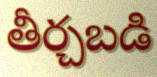
తీర్చబడి